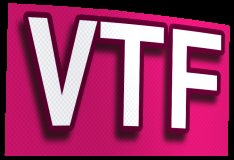
VTF